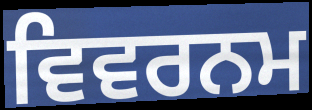
ਵਿਵਰਨਮ